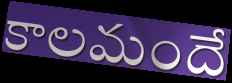
కాలమందే